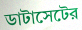
ডাটাসেটের